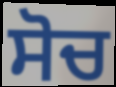
ਸੋਚ